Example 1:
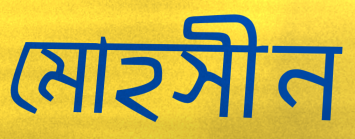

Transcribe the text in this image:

মোহসীন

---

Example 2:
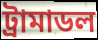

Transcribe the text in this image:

ট্রামাডল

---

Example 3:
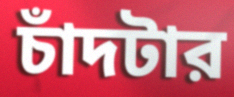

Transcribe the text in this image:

চাঁদটার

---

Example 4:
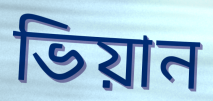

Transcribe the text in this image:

ভিয়ান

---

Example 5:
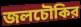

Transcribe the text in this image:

জলচৌকির